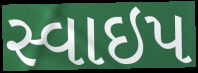
સ્વાઇપ